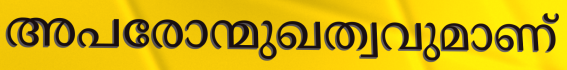
അപരോന്മുഖത്വവുമാണ്